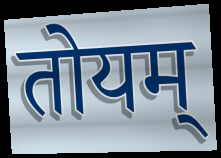
तोयम्